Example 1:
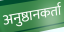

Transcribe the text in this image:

अनुष्ठानकर्ता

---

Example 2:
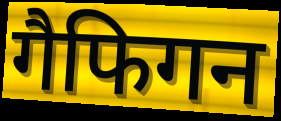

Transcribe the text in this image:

गैफिगन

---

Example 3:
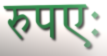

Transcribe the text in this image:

रुपएः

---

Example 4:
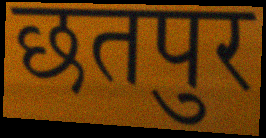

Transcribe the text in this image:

छतपुर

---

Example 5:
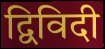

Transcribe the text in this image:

द्विविदी